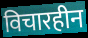
विचारहीन